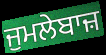
ਜੁਮਲੇਬਾਜ਼